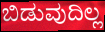
ಬಿಡುವುದಿಲ್ಲ